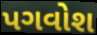
પગવોશ